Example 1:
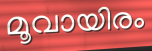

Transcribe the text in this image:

മൂവായിരം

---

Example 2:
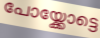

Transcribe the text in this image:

പോയ്ക്കോട്ടെ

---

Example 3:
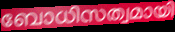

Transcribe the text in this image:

ബോധിസത്വമായി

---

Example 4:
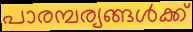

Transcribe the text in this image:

പാരമ്പര്യങ്ങൾക്ക്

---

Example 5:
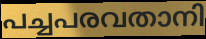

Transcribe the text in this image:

പച്ചപരവതാനി